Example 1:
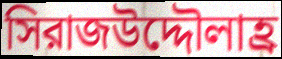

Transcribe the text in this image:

সিরাজউদ্দৌলাহ্র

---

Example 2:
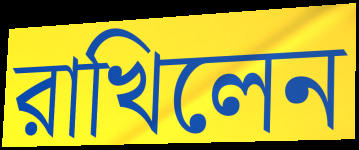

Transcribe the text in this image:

রাখিলেন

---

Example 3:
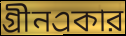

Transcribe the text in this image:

গ্রীনএকার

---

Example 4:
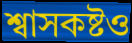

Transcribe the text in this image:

শ্বাসকষ্টও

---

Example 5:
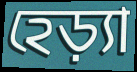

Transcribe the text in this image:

হেড়্যা